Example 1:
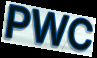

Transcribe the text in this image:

PWC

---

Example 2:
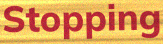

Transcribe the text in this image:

Stopping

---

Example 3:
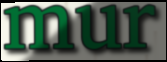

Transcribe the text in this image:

mur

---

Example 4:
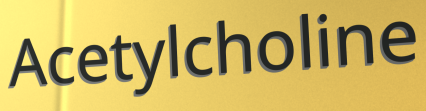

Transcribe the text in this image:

Acetylcholine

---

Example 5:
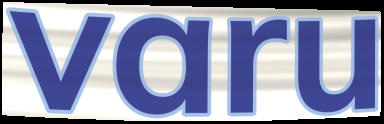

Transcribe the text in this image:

varu